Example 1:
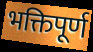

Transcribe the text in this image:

भक्तिपूर्ण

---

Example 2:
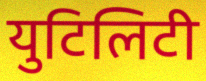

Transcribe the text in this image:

युटिलिटी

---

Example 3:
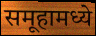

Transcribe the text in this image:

समूहामध्ये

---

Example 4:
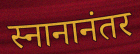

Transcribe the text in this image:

स्नानानंतर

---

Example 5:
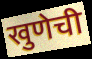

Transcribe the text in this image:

खुणेची